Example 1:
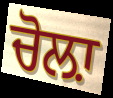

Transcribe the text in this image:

ਚੋਲ਼ਾ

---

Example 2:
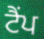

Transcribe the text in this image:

ਟੈਂਪ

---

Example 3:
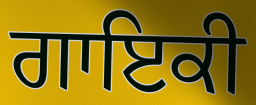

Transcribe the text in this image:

ਗਾਇਕੀ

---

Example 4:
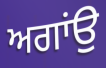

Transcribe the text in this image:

ਅਗਾਂਉ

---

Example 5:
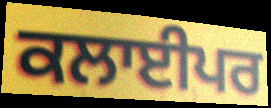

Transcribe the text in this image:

ਕਲਾਈਪਰ